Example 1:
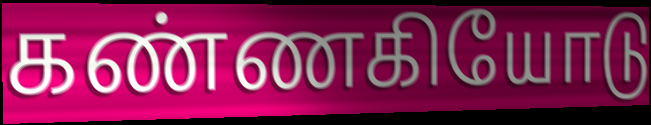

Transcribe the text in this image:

கண்ணகியோடு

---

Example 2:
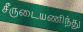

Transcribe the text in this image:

சீருடையணிந்து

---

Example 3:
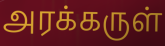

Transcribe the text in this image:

அரக்கருள்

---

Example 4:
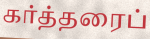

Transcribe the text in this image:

கர்த்தரைப்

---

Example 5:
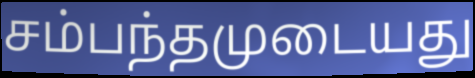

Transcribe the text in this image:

சம்பந்தமுடையது